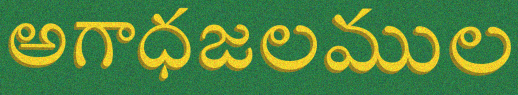
అగాధజలముల